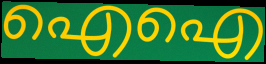
ഐഐ